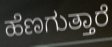
ಹೆಣಗುತ್ತಾರೆ